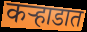
कऱ्हाडात